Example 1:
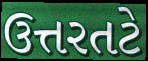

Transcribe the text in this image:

ઉત્તરતટે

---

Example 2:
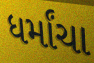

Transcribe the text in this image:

ધર્માંચા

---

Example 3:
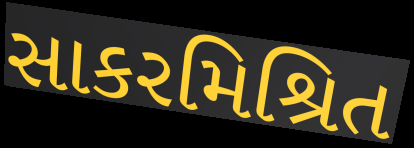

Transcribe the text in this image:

સાકરમિશ્રિત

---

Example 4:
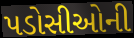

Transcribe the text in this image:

પડોસીઓની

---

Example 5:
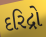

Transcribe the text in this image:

દરિદ્રો